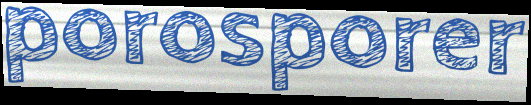
porosporer